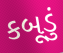
કબૂડું